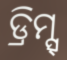
ଡ୍ରିମ୍ସ୍